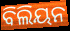
ବିଲିୟନ